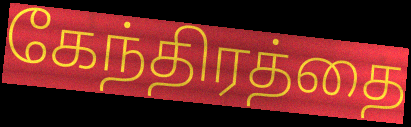
கேந்திரத்தை